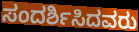
ಸಂದರ್ಶಿಸಿದವರು